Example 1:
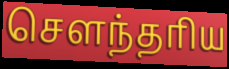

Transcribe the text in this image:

சௌந்தரிய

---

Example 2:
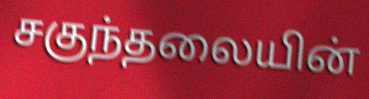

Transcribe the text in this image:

சகுந்தலையின்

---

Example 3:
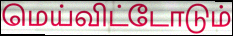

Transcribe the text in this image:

மெய்விட்டோடும்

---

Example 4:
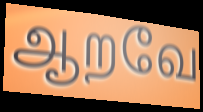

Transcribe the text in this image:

ஆறவே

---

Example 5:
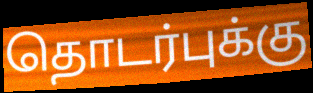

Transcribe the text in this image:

தொடர்புக்கு